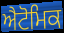
ਐਟੋਮਿਕ